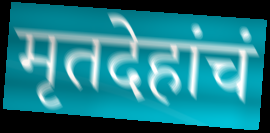
मृतदेहांचं